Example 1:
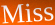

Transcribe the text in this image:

Miss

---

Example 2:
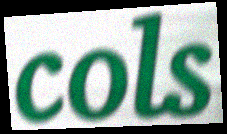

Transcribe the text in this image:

cols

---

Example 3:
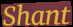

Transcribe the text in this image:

Shant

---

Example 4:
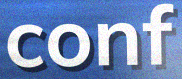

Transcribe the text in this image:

conf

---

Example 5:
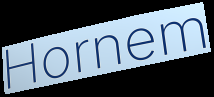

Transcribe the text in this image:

Hornem